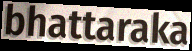
bhattaraka